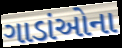
ગાડાંઓના